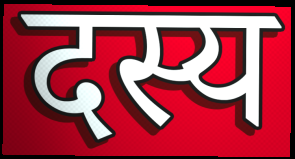
दस्य